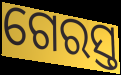
ଗେରସ୍ତ